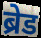
ब्रेड